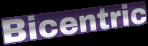
Bicentric